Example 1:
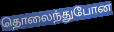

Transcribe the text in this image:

தொலைந்துபோன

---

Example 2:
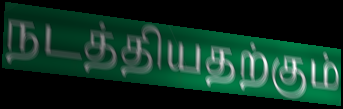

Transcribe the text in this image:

நடத்தியதற்கும்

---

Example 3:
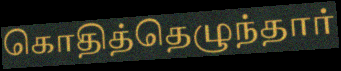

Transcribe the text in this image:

கொதித்தெழுந்தார்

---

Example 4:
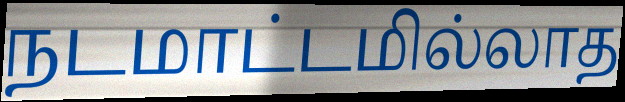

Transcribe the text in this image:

நடமாட்டமில்லாத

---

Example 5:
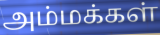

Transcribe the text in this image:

அம்மக்கள்